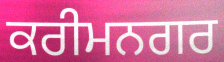
ਕਰੀਮਨਗਰ